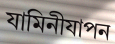
যামিনীযাপন